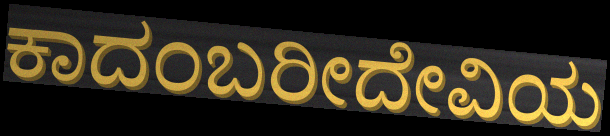
ಕಾದಂಬರೀದೇವಿಯ